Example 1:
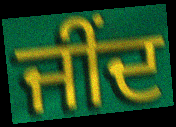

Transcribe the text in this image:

ਜੀਂਦ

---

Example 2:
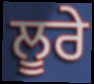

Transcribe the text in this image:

ਲੂਰੇ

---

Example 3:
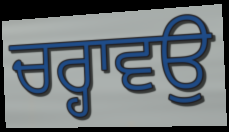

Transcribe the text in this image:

ਚਰ੍ਹਾਵਉ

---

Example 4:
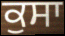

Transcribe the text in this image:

ਕੁਸਾ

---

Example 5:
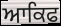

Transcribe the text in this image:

ਆਕਿਫ